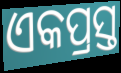
ଏକପ୍ରସ୍ତ